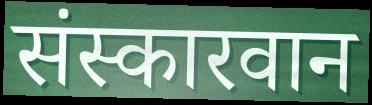
संस्कारवान